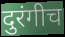
दुरंगीच